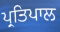
ਪ੍ਰਤਿਪਾਲ